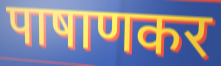
पाषाणकर